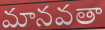
మానవతా